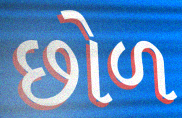
છોળ